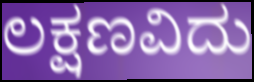
ಲಕ್ಷಣವಿದು